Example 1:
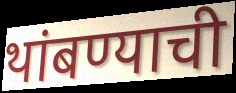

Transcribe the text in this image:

थांबण्याची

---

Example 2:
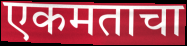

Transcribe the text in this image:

एकमताचा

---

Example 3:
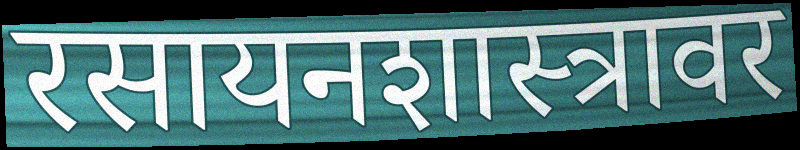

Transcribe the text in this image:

रसायनशास्त्रावर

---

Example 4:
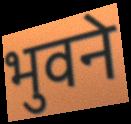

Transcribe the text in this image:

भुवने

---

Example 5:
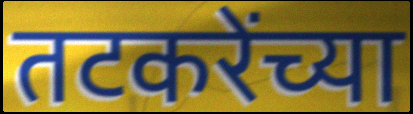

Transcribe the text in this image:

तटकरेंच्या